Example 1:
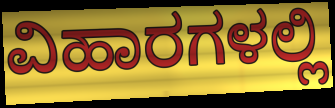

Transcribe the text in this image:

ವಿಹಾರಗಳಲ್ಲಿ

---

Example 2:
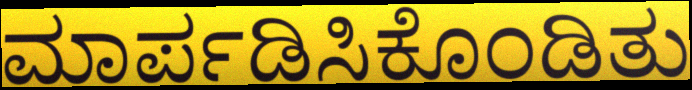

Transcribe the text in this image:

ಮಾರ್ಪಡಿಸಿಕೊಂಡಿತು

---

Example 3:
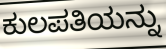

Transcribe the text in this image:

ಕುಲಪತಿಯನ್ನು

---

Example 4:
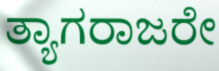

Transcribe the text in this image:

ತ್ಯಾಗರಾಜರೇ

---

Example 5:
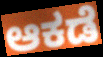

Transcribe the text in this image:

ಆಕಡೆ